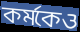
কর্মকেও